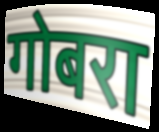
गोबरा